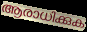
ആരാധിക്കുക